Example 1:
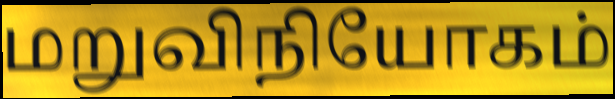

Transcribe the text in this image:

மறுவிநியோகம்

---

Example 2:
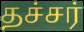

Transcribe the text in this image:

தச்சர்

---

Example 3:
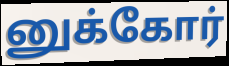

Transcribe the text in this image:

னுக்கோர்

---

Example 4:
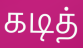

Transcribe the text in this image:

கடித்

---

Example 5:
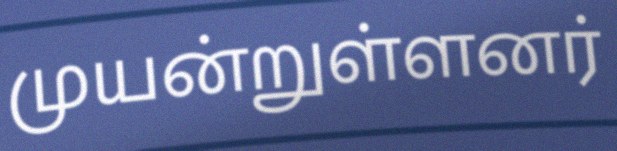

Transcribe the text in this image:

முயன்றுள்ளனர்